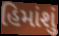
હિમાંશું